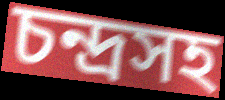
চন্দ্রসহ